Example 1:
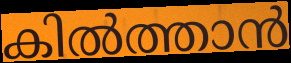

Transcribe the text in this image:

കിൽത്താൻ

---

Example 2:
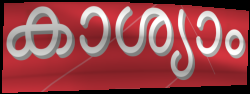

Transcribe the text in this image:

കാശ്യാം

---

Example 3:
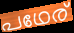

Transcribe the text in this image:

പഥേര്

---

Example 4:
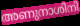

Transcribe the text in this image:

അണുനാശിനി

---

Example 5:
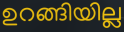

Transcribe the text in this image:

ഉറങ്ങിയില്ല